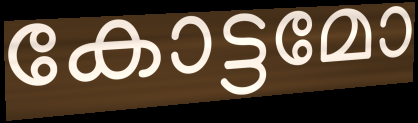
കോട്ടമോ